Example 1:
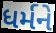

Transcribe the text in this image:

ધર્મને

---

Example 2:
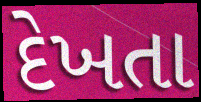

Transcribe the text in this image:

દેખતા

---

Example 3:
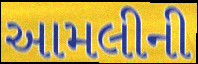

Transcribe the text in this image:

આમલીની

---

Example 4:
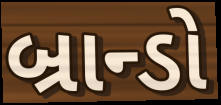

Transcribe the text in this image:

બ્રાન્ડો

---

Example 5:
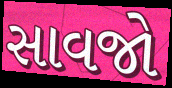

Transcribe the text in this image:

સાવજો